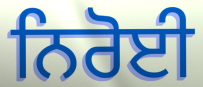
ਨਿਰੋਈ